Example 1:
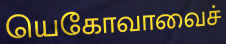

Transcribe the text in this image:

யெகோவாவைச்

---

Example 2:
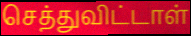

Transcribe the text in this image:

செத்துவிட்டாள்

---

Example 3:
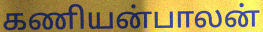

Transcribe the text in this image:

கணியன்பாலன்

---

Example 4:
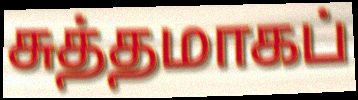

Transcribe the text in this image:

சுத்தமாகப்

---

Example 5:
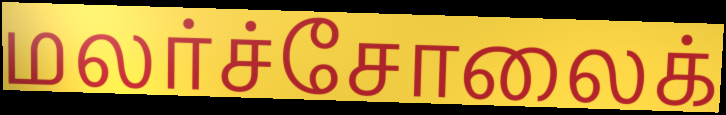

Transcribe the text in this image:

மலர்ச்சோலைக்